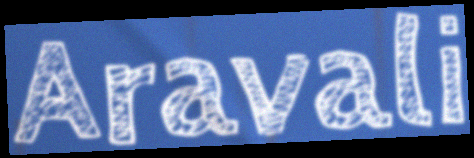
Aravali